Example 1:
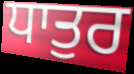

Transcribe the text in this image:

ਧਾਤੁਰ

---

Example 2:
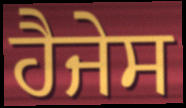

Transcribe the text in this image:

ਹੈਜੇਸ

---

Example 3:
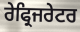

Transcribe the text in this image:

ਰੇਫ੍ਰਿਜਰੇਟਰ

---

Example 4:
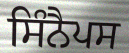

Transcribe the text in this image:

ਸਿੰਨੈਪਸ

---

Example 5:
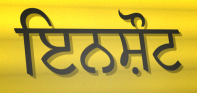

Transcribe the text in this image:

ਇਨਸ਼ੌਟ